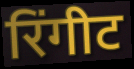
रिंगीट